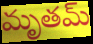
మృతమ్